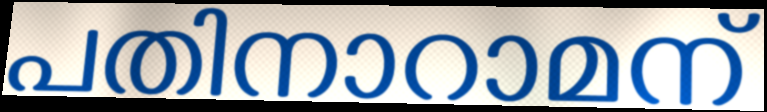
പതിനാറാമന്